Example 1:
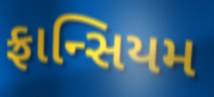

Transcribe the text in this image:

ફ્રાન્સિયમ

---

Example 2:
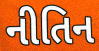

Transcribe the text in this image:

નીતિન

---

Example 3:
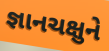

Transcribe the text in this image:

જ્ઞાનચક્ષુને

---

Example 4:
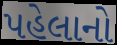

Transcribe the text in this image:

પહેલાનો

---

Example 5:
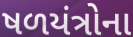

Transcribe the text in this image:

ષળયંત્રોના